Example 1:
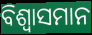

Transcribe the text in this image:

ବିଶ୍ଵାସମାନ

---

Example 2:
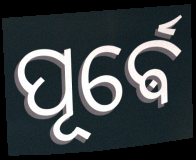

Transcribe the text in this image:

ପୂର୍ଵେ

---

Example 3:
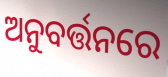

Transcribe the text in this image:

ଅନୁବର୍ତ୍ତନରେ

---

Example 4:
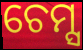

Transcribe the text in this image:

ଚେମ୍ସ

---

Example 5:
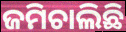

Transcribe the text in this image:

ଜମିଚାଲିଛି